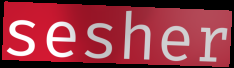
sesher